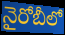
నైరోబీలో